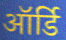
ऑर्डि